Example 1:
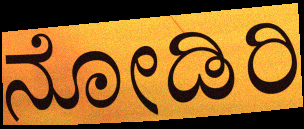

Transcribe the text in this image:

ನೋಡಿರಿ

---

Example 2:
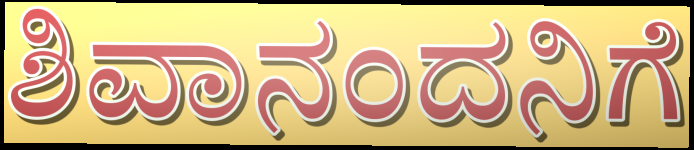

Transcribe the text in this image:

ಶಿವಾನಂದನಿಗೆ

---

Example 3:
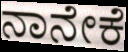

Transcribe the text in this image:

ನಾನೇಕೆ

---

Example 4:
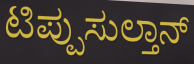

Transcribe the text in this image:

ಟಿಪ್ಪುಸುಲ್ತಾನ್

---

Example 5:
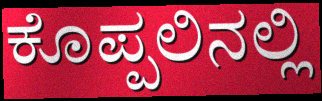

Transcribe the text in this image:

ಕೊಪ್ಪಲಿನಲ್ಲಿ